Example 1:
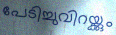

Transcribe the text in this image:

പേടിച്ചുവിറയ്ക്കും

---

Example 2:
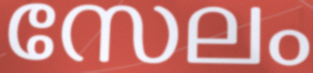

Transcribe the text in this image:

സേലം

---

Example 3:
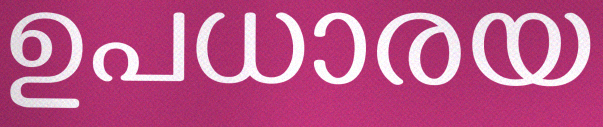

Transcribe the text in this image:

ഉപധാരയ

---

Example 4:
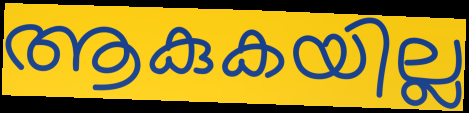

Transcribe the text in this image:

ആകുകയില്ല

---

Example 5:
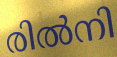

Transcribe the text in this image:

രിൽനി